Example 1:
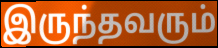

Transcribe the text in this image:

இருந்தவரும்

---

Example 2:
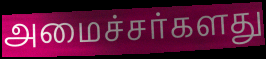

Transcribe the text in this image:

அமைச்சர்களது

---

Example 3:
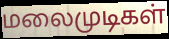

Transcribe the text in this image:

மலைமுடிகள்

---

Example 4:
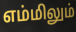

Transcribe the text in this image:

எம்மிலும்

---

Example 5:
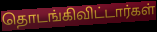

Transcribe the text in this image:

தொடங்கிவிட்டார்கள்